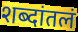
शब्दांतलं